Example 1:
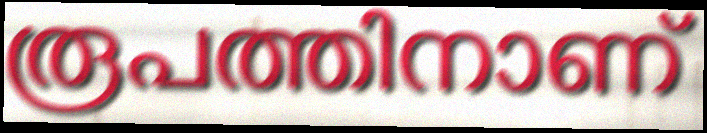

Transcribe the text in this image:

രൂപത്തിനാണ്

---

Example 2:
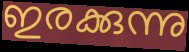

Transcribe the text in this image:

ഇരക്കുന്നു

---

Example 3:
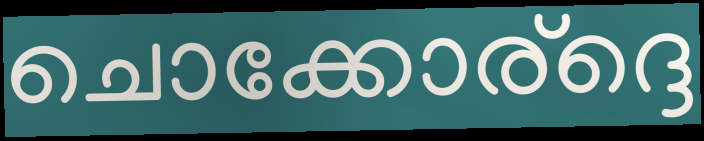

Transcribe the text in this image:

ചൊക്കോര്ദ്ദെ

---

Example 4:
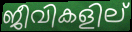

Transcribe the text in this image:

ജീവികളില്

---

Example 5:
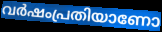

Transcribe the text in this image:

വർഷംപ്രതിയാണോ